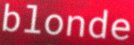
blonde